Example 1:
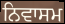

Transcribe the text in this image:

ਨਿਵਾਸਮ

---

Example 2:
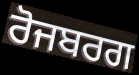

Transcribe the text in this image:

ਰੋਜਬਰਗ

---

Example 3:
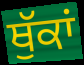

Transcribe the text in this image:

ਥੁੱਕਾਂ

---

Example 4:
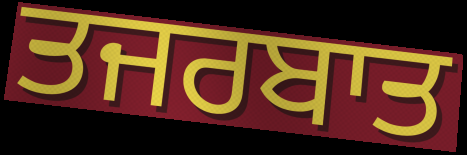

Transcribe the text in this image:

ਤਜਰਬਾਤ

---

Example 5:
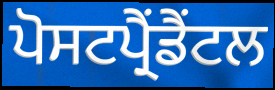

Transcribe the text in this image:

ਪੋਸਟਪ੍ਰੈਂਡੈਂਟਲ